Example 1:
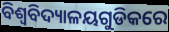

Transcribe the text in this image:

ବିଶ୍ଵବିଦ୍ୟାଳୟଗୁଡିକରେ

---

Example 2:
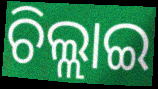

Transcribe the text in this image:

ଚିଲ୍ଲାଇ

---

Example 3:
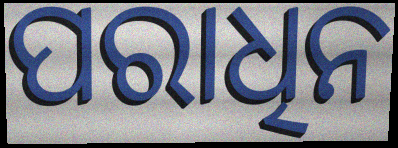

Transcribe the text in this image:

ପରାଧିନ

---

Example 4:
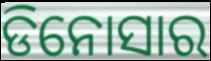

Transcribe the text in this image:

ଡିନୋସାର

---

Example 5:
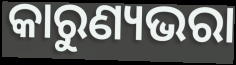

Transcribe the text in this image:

କାରୁଣ୍ୟଭରା